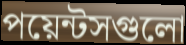
পয়েন্টসগুলো